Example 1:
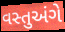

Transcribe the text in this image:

વસ્તુઅંગે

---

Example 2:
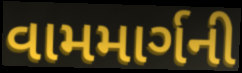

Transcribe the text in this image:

વામમાર્ગની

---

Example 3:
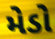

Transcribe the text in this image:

મેડો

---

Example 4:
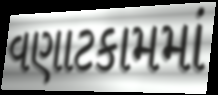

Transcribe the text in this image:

વણાટકામમાં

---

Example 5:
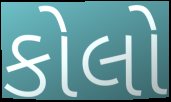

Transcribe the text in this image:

કોલો